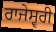
ਰਾਜੇਸ੍ਵਰੀ